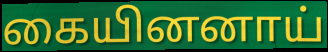
கையினனாய்